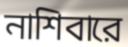
নাশিবারে